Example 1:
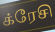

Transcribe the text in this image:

க்ரேசி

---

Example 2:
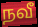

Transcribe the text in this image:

நவீ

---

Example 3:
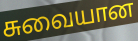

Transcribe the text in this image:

சுவையான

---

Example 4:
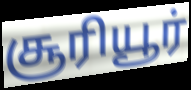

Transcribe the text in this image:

சூரியூர்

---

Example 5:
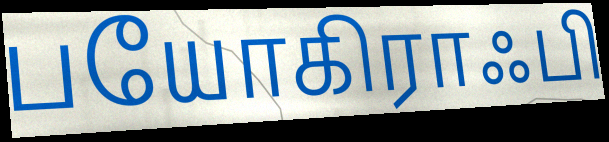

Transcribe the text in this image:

பயோகிராஃபி